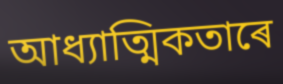
আধ্যাত্মিকতাৰে